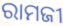
ରାମଜୀ